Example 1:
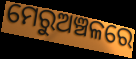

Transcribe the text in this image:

ମେରୁଅଞ୍ଚଳରେ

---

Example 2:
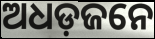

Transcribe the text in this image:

ଅଧଡ଼ଜନେ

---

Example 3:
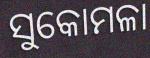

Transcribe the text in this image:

ସୁକୋମଳା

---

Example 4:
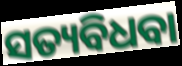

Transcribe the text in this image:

ସତ୍ୟବିଧବା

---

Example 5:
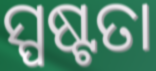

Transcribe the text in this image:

ସ୍ପଷ୍ଟତା